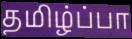
தமிழ்ப்பா